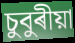
চুবুৰীয়া